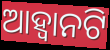
ଆହ୍ଵାନଟି